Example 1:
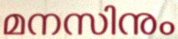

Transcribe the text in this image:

മനസിനും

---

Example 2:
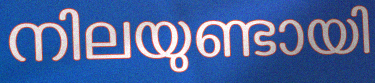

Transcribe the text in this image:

നിലയുണ്ടായി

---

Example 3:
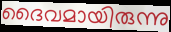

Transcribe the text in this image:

ദൈവമായിരുന്നു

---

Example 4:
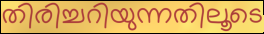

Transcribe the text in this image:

തിരിച്ചറിയുന്നതിലൂടെ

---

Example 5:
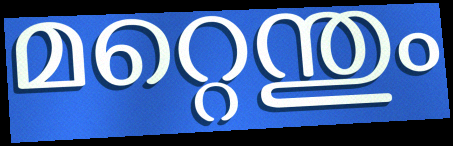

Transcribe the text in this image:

മറ്റെന്തും